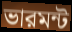
ভারমন্ট